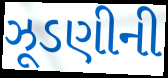
ઝૂડણીની